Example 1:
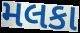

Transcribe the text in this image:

મલકા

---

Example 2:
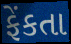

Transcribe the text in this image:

ફેંકતા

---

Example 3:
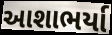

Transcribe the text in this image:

આશાભર્યા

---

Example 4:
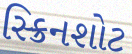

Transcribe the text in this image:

સ્ક્રિનશોટ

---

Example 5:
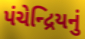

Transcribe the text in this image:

પંચેન્દ્રિયનું